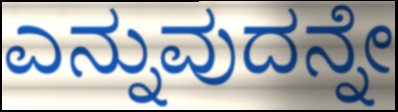
ಎನ್ನುವುದನ್ನೇ